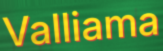
Valliama